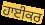
ਹਾਈਕਰ